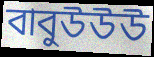
বাবুউউউ